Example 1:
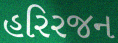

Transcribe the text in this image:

હરિરજન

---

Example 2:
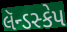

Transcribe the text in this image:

લૅન્ડસ્કેપ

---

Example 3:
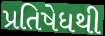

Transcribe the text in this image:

પ્રતિષેધથી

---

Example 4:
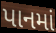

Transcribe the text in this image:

પાનમાં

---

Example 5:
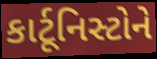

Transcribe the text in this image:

કાર્ટૂનિસ્ટોને